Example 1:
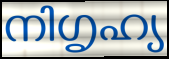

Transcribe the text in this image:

നിഗൃഹ്യ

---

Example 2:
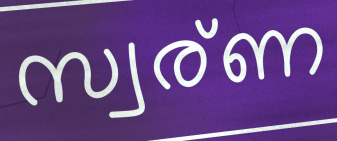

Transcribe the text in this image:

സ്വര്ണ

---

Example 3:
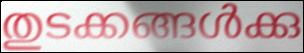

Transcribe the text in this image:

തുടക്കങ്ങൾക്കു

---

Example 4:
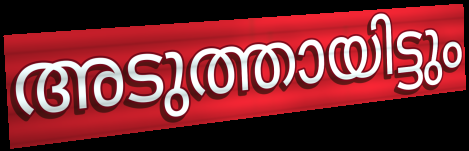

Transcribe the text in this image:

അടുത്തായിട്ടും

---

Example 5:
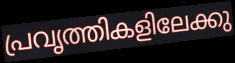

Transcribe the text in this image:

പ്രവൃത്തികളിലേക്കു